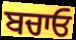
ਬਚਾਓ